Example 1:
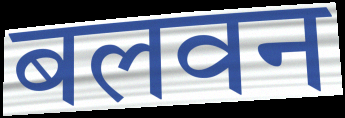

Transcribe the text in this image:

बलवन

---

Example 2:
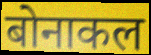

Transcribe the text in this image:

बोनाकल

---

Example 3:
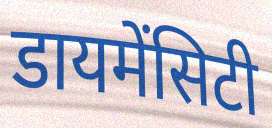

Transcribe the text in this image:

डायमेंसिटी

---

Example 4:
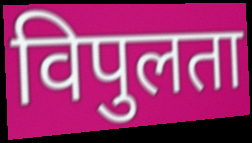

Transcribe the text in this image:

विपुलता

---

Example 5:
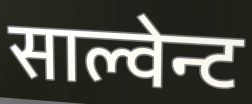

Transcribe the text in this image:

साल्वेन्ट